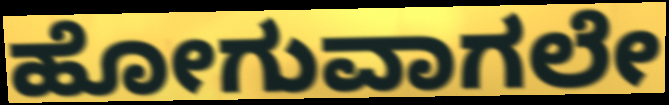
ಹೋಗುವಾಗಲೇ